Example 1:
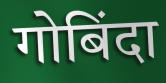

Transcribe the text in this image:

गोबिंदा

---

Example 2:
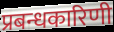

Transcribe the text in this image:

प्रबन्धकारिणी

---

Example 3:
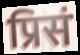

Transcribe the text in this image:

प्रिसं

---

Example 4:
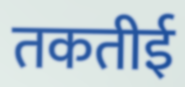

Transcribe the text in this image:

तकतीई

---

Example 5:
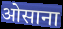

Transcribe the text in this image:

ओसाना